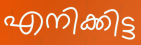
എനിക്കിട്ട